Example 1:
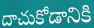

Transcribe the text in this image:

దాచుకోడానికి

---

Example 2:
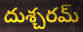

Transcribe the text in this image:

దుశ్చరమ్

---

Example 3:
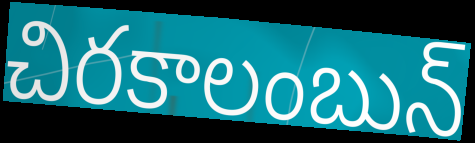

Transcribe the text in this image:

చిరకాలంబున్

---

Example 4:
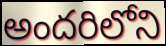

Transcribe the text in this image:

అందరిలోని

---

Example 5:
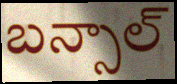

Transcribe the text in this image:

బన్సాల్